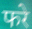
फरे